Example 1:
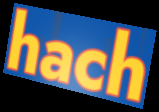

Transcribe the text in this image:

hach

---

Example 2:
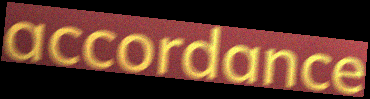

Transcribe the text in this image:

accordance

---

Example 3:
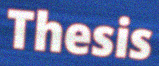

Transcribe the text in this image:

Thesis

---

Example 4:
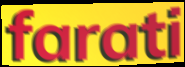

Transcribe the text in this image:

farati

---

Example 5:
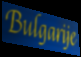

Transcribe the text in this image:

Bulgarije